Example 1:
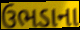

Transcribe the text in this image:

ઉભડાના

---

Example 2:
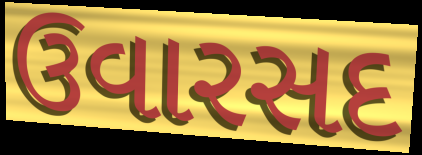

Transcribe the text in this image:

ઉવારસદ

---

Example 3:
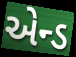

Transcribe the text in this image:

એન્ડ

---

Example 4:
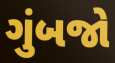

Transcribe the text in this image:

ગુંબજો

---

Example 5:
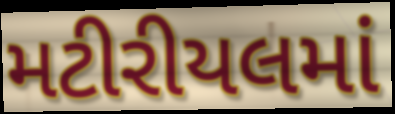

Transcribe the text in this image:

મટીરીયલમાં